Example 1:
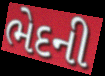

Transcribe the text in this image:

ભેદની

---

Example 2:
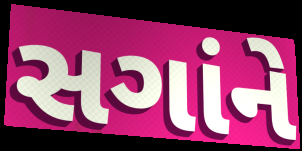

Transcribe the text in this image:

સગાંને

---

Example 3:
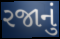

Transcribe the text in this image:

રજાનું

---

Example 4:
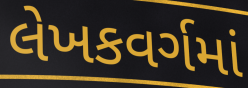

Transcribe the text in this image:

લેખકવર્ગમાં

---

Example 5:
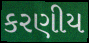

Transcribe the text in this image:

કરણીય